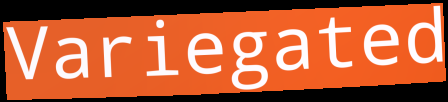
Variegated